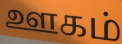
ஊகம்